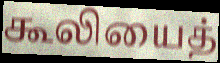
கூலியைத்